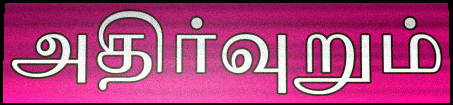
அதிர்வுறும்